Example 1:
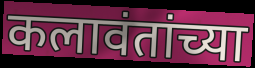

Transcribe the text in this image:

कलावंतांच्या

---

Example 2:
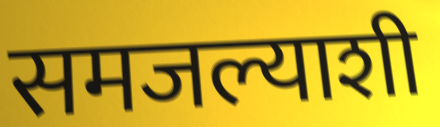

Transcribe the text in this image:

समजल्याशी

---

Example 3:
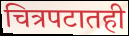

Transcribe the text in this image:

चित्रपटातही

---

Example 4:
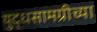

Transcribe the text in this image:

युद्धसामग्रीच्या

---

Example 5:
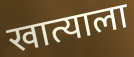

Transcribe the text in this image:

खात्याला